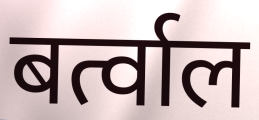
बर्त्वाल